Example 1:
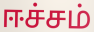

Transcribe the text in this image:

ஈச்சம்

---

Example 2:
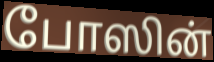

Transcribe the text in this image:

போஸின்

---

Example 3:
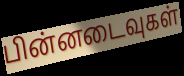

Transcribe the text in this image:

பின்னடைவுகள்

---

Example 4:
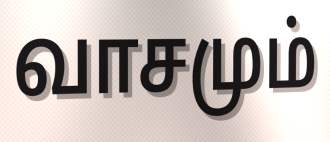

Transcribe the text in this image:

வாசமும்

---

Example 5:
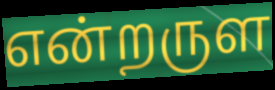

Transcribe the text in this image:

என்றருள